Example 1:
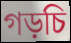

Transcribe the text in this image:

গড়চি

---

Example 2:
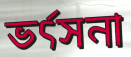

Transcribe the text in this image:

ভর্ৎসনা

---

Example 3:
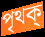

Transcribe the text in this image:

পৃথক্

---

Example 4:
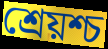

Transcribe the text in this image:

শ্রেয়শ্চ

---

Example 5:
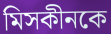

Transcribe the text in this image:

মিসকীনকে